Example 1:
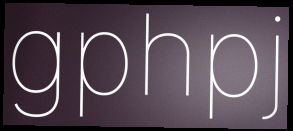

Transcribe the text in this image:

gphpj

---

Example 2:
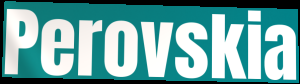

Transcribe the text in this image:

Perovskia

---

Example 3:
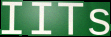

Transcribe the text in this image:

IITs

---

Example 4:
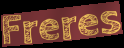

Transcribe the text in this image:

Freres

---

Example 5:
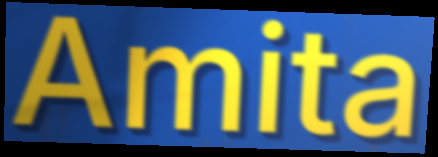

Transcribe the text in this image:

Amita